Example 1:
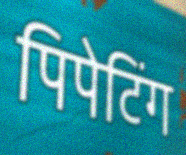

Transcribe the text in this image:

पिपेटिंग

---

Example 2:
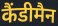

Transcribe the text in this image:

कैंडीमैन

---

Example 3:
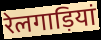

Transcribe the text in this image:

रेलगाड़ियां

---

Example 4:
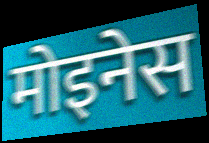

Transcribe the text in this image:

मोइनेस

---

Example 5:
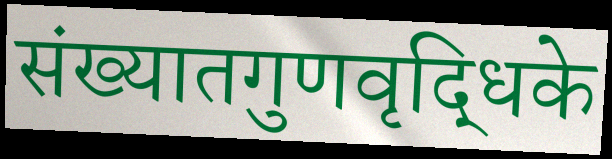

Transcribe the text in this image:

संख्यातगुणवृद्धिके